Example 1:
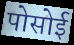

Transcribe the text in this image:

पोसोई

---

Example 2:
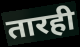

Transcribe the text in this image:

तारही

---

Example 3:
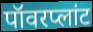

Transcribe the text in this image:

पॉवरप्लांट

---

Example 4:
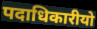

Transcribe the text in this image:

पदाधिकारीयो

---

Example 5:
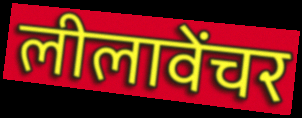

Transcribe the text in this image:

लीलावेंचर